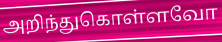
அறிந்துகொள்ளவோ